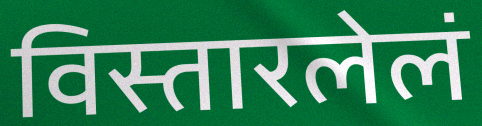
विस्तारलेलं